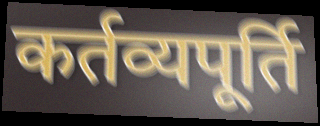
कर्तव्यपूर्ति